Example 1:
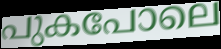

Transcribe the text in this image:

പുകപോലെ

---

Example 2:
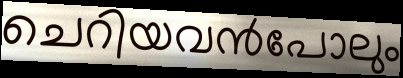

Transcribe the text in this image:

ചെറിയവൻപോലും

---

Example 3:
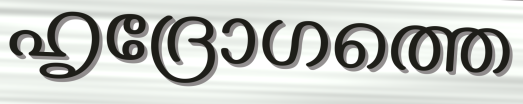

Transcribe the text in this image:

ഹൃദ്രോഗത്തെ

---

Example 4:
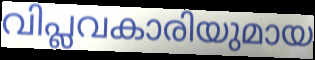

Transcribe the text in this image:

വിപ്ലവകാരിയുമായ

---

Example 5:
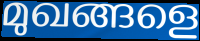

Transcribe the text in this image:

മുഖങ്ങളെ